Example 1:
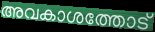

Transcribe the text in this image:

അവകാശത്തോട്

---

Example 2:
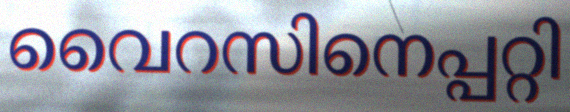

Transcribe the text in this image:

വൈറസിനെപ്പറ്റി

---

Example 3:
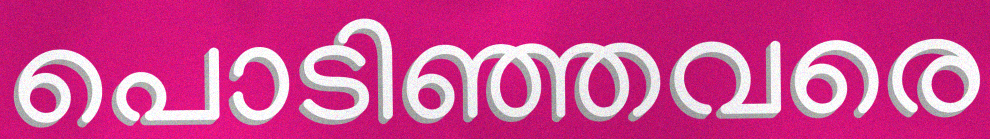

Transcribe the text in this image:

പൊടിഞ്ഞവരെ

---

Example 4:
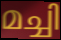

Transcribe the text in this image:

മച്ചി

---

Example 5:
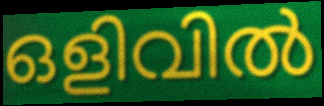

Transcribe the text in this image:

ഒളിവിൽ